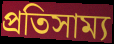
প্রতিসাম্য